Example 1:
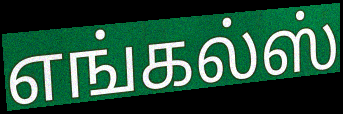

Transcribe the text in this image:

எங்கல்ஸ்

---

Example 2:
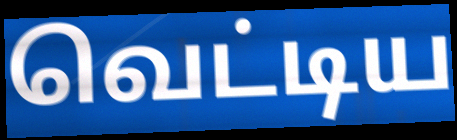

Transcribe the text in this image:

வெட்டிய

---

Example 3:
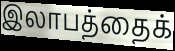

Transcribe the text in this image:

இலாபத்தைக்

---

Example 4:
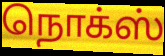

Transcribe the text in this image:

நொக்ஸ்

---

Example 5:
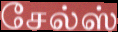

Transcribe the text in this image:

சேல்ஸ்